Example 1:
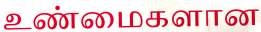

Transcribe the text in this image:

உண்மைகளான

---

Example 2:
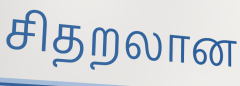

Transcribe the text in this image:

சிதறலான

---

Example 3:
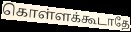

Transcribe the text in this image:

கொள்ளக்கூடாதே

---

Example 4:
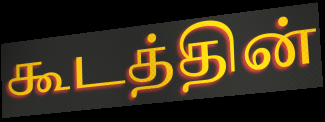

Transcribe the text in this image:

கூடத்தின்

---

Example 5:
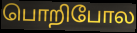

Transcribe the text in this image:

பொறிபோல